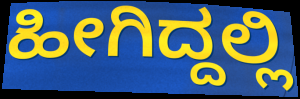
ಹೀಗಿದ್ದಲ್ಲಿ